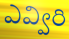
ఎవ్విరి